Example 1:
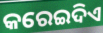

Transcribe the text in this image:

କରେଇଦିଏ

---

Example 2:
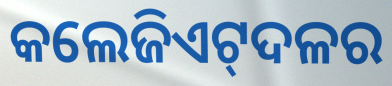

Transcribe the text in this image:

କଲେଜିଏଟ୍‍ଦଳର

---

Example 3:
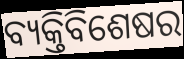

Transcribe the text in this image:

ବ୍ୟକ୍ତିବିଶେଷର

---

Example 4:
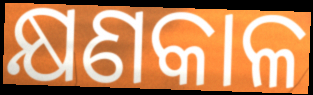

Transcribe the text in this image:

କ୍ଷଣକାଳ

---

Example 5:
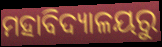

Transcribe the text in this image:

ମହାବିଦ୍ୟାଳୟରୁ